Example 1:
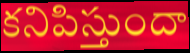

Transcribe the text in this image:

కనిపిస్తుందా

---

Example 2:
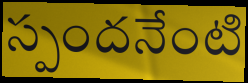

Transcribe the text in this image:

స్పందనేంటి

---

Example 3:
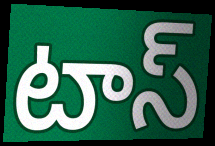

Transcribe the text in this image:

టాస్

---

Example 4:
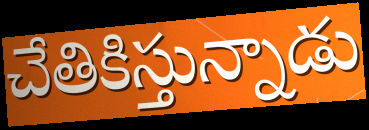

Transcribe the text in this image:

చేతికిస్తున్నాడు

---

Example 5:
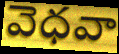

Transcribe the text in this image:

వెధవా